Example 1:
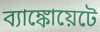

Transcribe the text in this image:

ব্যাঙ্কোয়েটে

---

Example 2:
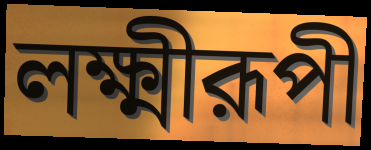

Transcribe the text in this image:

লক্ষ্মীরূপী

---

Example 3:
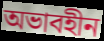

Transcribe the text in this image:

অভাবহীন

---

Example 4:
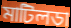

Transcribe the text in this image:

মাটিলডা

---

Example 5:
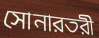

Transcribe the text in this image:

সোনারতরী